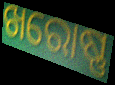
ଖରୋଷ୍ଣ